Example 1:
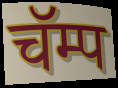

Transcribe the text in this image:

चॅम्प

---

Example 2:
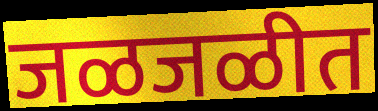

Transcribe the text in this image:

जळजळीत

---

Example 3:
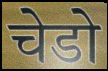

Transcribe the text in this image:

चेडो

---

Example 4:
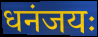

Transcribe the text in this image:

धनंजयः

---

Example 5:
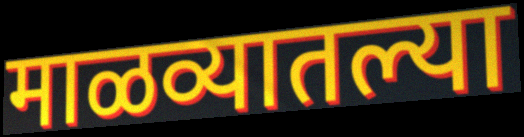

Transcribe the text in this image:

माळव्यातल्या